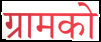
ग्रामको